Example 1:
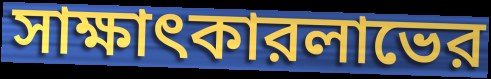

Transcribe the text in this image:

সাক্ষাৎকারলাভের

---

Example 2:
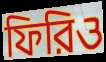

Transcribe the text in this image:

ফিরিও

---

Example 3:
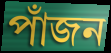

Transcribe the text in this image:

পাঁজন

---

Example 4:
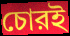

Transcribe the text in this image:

চোরই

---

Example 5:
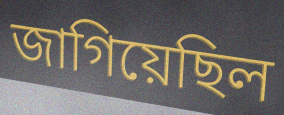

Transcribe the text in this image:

জাগিয়েছিল